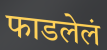
फाडलेलं